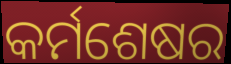
କର୍ମଶେଷର